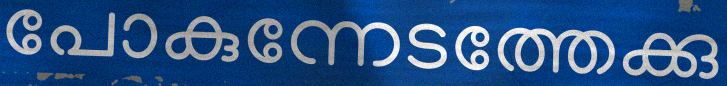
പോകുന്നേടത്തേക്കു